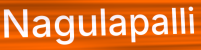
Nagulapalli